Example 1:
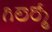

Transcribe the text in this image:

గిలెర్మో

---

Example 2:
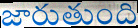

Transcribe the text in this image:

జారుతుంది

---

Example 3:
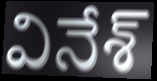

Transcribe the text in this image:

వినేశ్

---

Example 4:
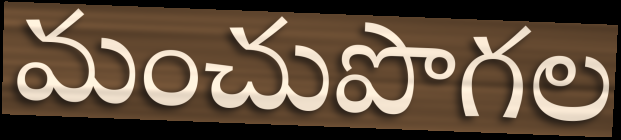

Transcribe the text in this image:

మంచుపొగల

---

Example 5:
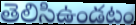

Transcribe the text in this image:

తెలిసిఉండటం